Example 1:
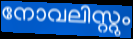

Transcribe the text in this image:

നോവലിസ്റ്റും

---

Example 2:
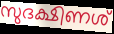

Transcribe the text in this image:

സുദക്ഷിണശ്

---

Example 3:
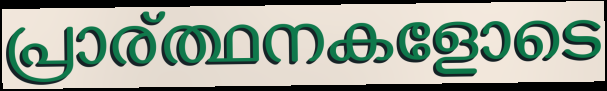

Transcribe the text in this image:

പ്രാര്ത്ഥനകളോടെ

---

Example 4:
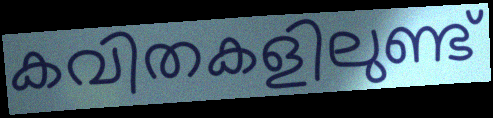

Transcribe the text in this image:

കവിതകളിലുണ്ട്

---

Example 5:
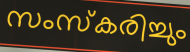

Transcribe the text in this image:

സംസ്കരിച്ചും